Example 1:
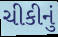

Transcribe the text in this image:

ચીકીનું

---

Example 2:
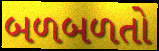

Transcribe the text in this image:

બળબળતો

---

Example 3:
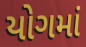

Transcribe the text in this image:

યોગમાં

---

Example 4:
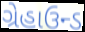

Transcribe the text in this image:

ગ્રેહાઉન્ડ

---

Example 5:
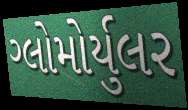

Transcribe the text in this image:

ગ્લોમોર્યુલર